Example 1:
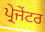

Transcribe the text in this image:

ਪ੍ਰੇਜੇਂਟਰ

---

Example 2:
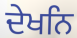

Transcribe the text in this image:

ਦੇਖਨਿ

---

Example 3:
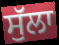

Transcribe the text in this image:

ਸੁੱਲਾ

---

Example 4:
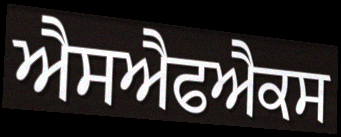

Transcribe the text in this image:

ਐਸਐਫਐਕਸ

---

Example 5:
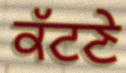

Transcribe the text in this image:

ਕੱਟਣੇ